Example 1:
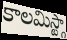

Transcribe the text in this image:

కాలమిస్ట్గా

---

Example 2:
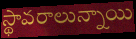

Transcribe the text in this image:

స్థావరాలున్నాయి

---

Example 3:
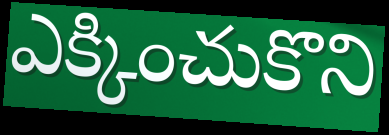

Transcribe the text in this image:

ఎక్కించుకొని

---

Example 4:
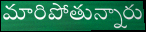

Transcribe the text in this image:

మారిపోతున్నారు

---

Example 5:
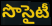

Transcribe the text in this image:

సొసైటీ